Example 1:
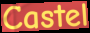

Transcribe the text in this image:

Castel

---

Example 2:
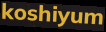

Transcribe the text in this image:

koshiyum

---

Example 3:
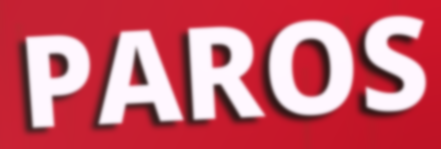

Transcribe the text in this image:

PAROS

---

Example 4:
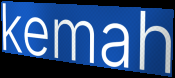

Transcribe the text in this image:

kemah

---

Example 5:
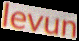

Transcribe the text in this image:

levun